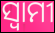
ସ୍ବାମୀ